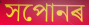
সপোনৰ